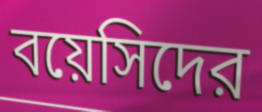
বয়েসিদের